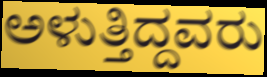
ಅಳುತ್ತಿದ್ದವರು